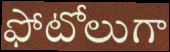
ఫోటోలుగా